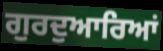
ਗੁਰਦੁਆਰਿਆਂ